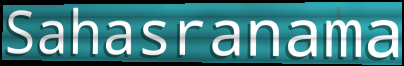
Sahasranama